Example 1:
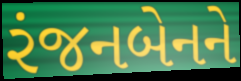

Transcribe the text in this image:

રંજનબેનને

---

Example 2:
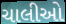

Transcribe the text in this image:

ચાલીઓ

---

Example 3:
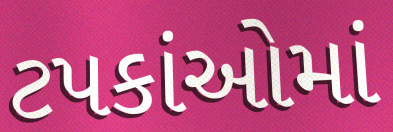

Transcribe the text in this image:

ટપકાંઓમાં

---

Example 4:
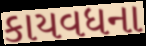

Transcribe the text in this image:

કાયવધના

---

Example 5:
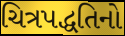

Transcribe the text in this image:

ચિત્રપદ્ધતિનો